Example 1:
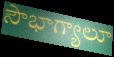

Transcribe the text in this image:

సౌభాగ్యాలూ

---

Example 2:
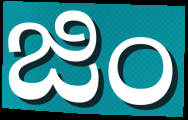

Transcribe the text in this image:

జిం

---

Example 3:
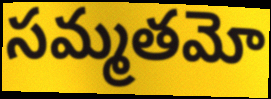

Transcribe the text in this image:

సమ్మతమో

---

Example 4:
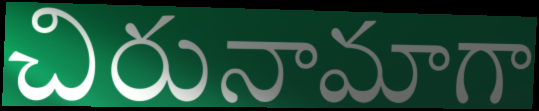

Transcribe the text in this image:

చిరునామాగా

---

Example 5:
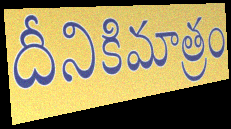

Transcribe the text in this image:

దీనికిమాత్రం